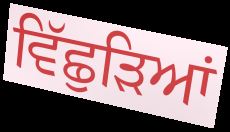
ਵਿੱਛੁੜਿਆਂ